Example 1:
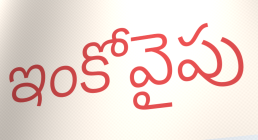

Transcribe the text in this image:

ఇంకోవైపు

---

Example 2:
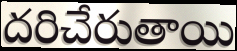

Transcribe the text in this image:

దరిచేరుతాయి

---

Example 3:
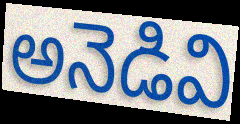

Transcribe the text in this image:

అనెడివి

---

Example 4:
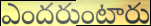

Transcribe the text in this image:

ఎందరుంటారు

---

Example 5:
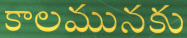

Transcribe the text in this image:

కాలమునకు